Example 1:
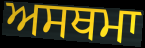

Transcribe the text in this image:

ਅਸਥਮਾ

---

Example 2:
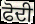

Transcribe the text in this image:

ਫੋਦੀ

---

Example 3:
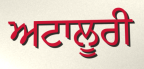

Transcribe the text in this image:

ਅਟਾਲੂਰੀ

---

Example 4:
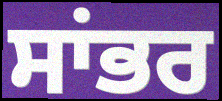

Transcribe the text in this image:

ਸਾਂਭਰ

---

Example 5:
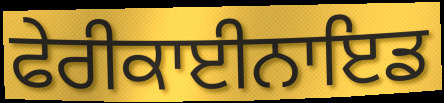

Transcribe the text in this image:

ਫੇਰੀਕਾਈਨਾਇਡ